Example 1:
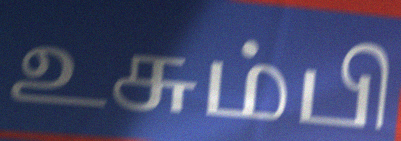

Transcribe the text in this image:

உசும்பி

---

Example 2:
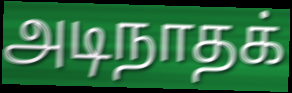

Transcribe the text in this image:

அடிநாதக்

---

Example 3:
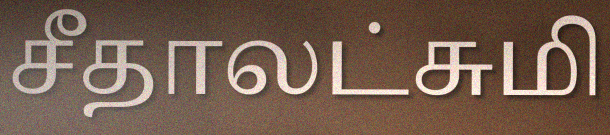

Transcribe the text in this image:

சீதாலட்சுமி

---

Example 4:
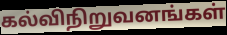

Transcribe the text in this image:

கல்விநிறுவனங்கள்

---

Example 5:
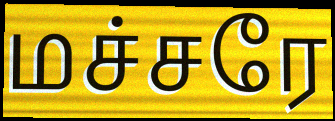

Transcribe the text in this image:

மச்சரே